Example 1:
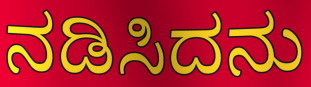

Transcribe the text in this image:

ನಡಿಸಿದನು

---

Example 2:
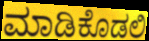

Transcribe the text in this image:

ಮಾಡಿಕೊಡಲಿ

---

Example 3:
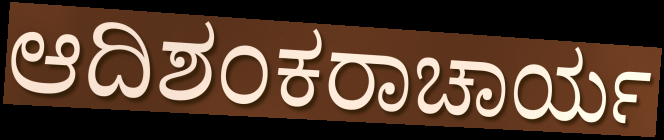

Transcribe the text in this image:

ಆದಿಶಂಕರಾಚಾರ್ಯ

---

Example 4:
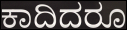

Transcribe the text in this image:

ಕಾದಿದರೂ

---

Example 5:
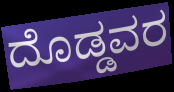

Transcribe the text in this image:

ದೊಡ್ಡವರ